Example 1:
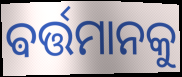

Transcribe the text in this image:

ଵର୍ତ୍ତମାନକୁ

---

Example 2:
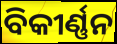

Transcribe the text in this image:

ବିକୀର୍ଣ୍ଣନ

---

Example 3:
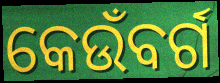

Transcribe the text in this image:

କେଉଁବର୍ଗ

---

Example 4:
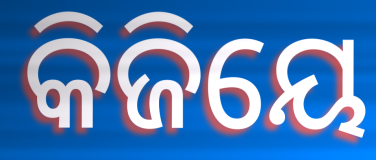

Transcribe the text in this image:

କିଜିୟେ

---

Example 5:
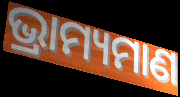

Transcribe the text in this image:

ଭ୍ରାମ୍ୟମାଣ